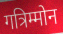
गत्रिम्मोन